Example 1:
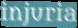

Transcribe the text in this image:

injuria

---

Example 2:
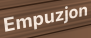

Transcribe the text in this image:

Empuzjon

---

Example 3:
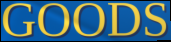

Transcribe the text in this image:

GOODS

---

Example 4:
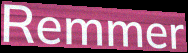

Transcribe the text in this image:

Remmer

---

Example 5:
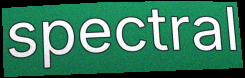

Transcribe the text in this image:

spectral